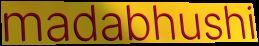
madabhushi